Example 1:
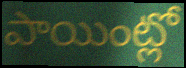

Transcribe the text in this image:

పాయింట్లో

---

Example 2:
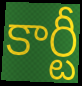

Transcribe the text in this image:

కార్టీ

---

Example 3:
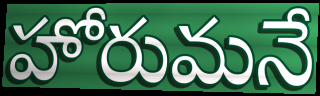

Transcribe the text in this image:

హోరుమనే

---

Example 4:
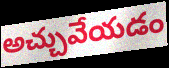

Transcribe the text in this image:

అచ్చువేయడం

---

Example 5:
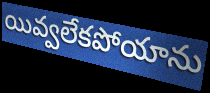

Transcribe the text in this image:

యివ్వలేకపోయాను